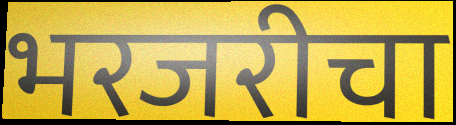
भरजरीचा